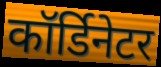
कॉर्डिनेटर